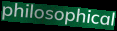
philosophical